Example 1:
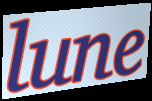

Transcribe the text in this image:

lune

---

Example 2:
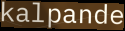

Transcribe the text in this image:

kalpande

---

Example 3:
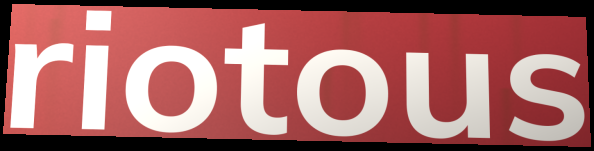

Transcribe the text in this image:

riotous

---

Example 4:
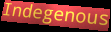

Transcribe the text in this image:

Indegenous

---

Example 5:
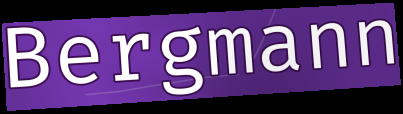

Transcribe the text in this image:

Bergmann